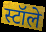
स्टॉले